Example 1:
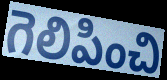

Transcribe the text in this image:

గెలిపించి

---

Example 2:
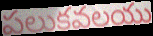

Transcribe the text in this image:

పలుకవలయు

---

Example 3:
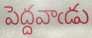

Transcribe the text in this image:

పెద్దవాఁడు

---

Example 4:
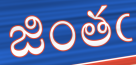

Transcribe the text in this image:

జింతఁ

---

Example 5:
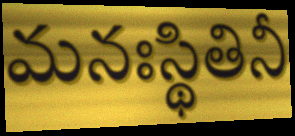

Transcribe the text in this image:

మనఃస్థితినీ